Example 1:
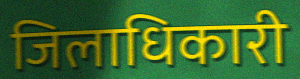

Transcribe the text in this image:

जिलाधिकारी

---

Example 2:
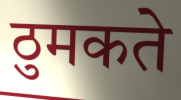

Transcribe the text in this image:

ठुमकते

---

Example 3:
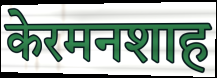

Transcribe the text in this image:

केरमनशाह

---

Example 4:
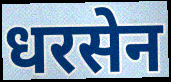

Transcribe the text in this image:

धरसेन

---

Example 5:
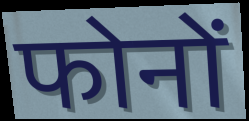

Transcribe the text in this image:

फोनों